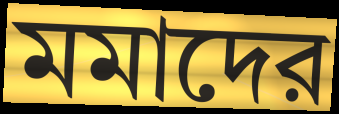
মমাদের